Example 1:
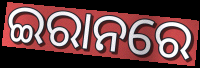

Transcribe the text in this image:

ଇରାନରେ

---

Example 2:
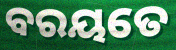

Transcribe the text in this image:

ବରୟତେ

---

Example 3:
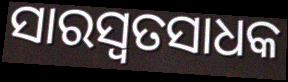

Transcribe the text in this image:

ସାରସ୍ଵତସାଧକ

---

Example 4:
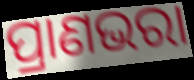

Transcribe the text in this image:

ପ୍ରାଣଭରା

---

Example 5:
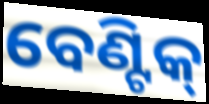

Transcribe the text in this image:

ବେଣ୍ଟିକ୍